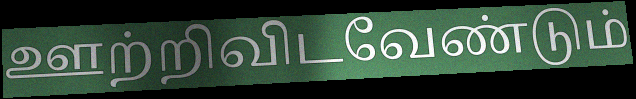
ஊற்றிவிடவேண்டும்